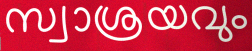
സ്വാശ്രയവും